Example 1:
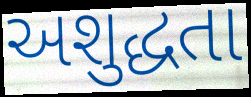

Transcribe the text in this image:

અશુદ્ધતા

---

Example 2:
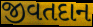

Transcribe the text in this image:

જીવતદાન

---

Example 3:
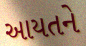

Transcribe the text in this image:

આયતને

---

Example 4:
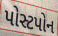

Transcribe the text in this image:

પોસ્ટપોન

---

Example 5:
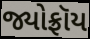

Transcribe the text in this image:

જ્યોફ્રૉય